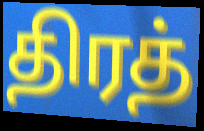
திரத்